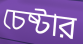
চেষ্টার